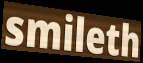
smileth